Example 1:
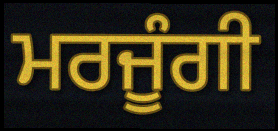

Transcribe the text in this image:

ਮਰਜੂੰਗੀ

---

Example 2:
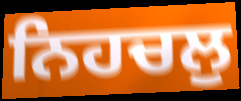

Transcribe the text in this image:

ਨਿਹਚਲੁ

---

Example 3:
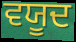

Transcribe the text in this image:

ਵਯੂਦ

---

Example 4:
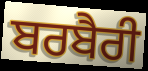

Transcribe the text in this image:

ਬਰਬੈਰੀ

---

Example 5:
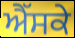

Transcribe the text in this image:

ਐੱਸਕੇ